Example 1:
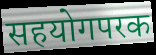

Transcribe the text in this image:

सहयोगपरक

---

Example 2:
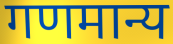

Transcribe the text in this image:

गणमान्‍य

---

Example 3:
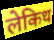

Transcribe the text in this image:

लेकिथ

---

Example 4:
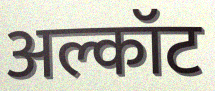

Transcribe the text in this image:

अल्कॉट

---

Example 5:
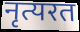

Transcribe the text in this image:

नृत्यरत